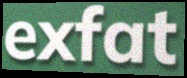
exfat